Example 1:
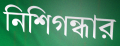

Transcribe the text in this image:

নিশিগন্ধার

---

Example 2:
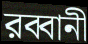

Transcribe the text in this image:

রব্বানী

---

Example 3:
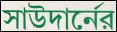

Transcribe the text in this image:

সাউদার্নের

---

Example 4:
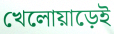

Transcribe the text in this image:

খেলোয়াড়েই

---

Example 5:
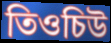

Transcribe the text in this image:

তিওচিউ